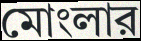
মোংলার